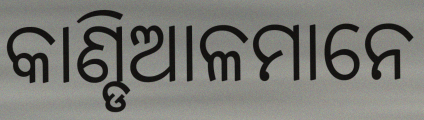
କାଣ୍ଡିଆଳମାନେ